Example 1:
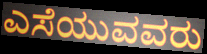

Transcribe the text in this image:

ಎಸೆಯುವವರು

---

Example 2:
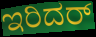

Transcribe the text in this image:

ಇರಿದರ್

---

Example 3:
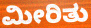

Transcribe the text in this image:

ಮೀರಿತು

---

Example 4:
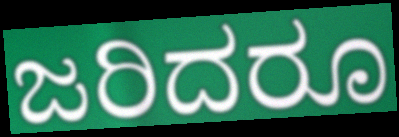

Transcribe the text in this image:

ಜರಿದರೂ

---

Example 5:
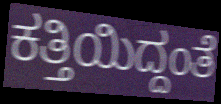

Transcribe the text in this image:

ಕತ್ತಿಯಿದ್ದಂತೆ